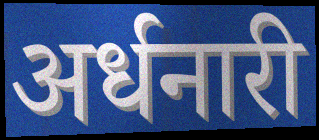
अर्धनारी